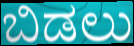
ಬಿಡಲು